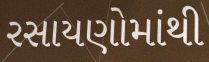
રસાયણોમાંથી